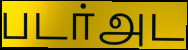
படர்அட